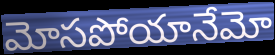
మోసపోయానేమో